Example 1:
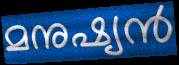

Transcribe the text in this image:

മനുഷ്യൻ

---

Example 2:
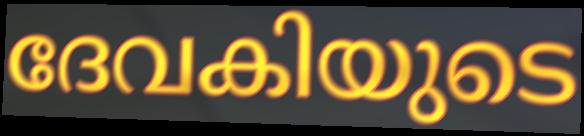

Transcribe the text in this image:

ദേവകിയുടെ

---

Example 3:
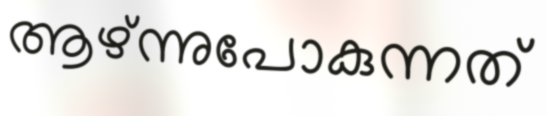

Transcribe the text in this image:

ആഴ്ന്നുപോകുന്നത്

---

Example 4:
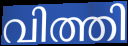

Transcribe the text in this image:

വിത്തി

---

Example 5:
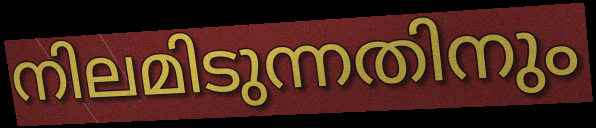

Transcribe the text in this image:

നിലമിടുന്നതിനും